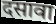
दसावा